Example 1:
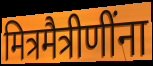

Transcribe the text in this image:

मित्रमैत्रीणींना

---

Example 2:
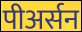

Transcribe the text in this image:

पीअर्सन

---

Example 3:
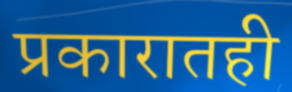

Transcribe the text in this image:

प्रकारातही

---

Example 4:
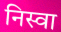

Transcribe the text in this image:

निस्वा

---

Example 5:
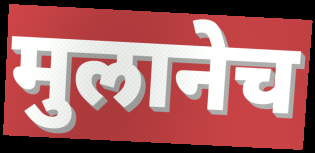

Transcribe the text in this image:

मुलानेच